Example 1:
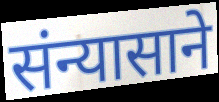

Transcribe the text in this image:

संन्यासाने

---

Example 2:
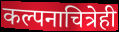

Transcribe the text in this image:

कल्पनाचित्रेही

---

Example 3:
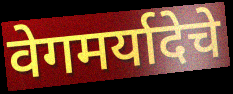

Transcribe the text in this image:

वेगमर्यादेचे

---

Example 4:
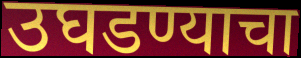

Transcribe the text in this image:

उघडण्याचा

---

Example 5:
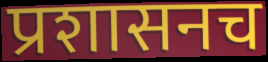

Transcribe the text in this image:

प्रशासनच